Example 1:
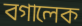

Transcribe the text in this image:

বগালেক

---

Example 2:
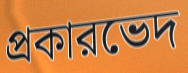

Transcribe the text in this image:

প্রকারভেদ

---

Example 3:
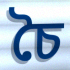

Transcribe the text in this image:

চৈ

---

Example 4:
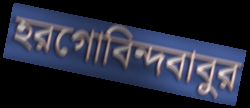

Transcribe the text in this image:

হরগোবিন্দবাবুর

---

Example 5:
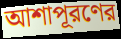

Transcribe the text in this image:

আশাপূরণের